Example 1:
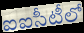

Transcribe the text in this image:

ఐఐసీటీలో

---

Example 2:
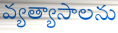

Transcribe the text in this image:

వ్యత్యాసాలను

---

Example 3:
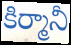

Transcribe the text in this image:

కిర్మానీ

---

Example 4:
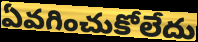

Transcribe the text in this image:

ఏవగించుకోలేదు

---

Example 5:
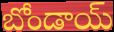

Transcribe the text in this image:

బోండాయ్